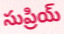
సుప్రియ్